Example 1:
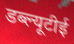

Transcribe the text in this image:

डब्ल्यूटीई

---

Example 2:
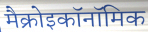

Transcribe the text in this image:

मैक्रोइकॉनॉमिक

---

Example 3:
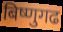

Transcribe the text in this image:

बिष्णुगढ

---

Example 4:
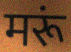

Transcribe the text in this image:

मरूं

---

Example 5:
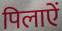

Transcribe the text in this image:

पिलाऐं